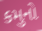
કમુનો